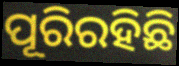
ପୂରିରହିଛି